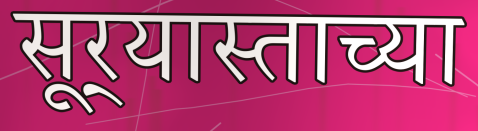
सूर्यास्ताच्या